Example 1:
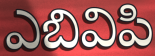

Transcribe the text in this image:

ఎబివిపి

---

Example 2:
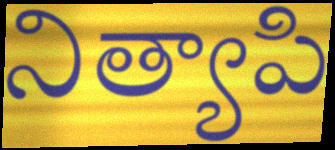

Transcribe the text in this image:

నిత్యాపి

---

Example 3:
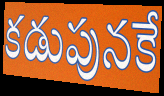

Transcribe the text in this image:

కడుపునకే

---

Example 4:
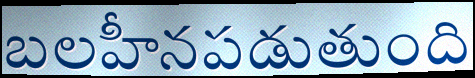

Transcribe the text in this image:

బలహీనపడుతుంది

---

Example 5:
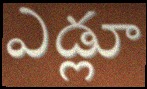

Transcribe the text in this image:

ఎడ్లూ